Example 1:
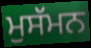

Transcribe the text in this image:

ਮੁਸੱਮਨ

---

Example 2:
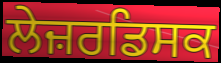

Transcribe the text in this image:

ਲੇਜ਼ਰਡਿਸਕ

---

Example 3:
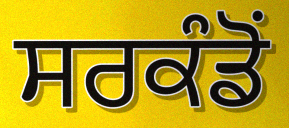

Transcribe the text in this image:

ਸਰਕੰਡੋਂ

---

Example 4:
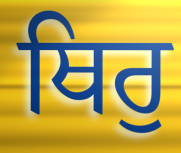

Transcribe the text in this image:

ਥਿਰੁ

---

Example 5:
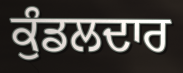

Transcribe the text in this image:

ਕੁੰਡਲਦਾਰ